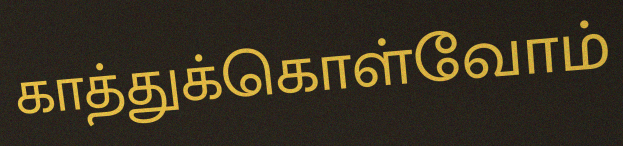
காத்துக்கொள்வோம்